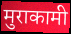
मुराकामी